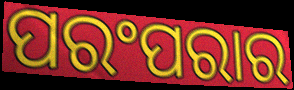
ପରଂପରାର